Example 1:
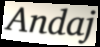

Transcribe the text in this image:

Andaj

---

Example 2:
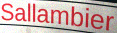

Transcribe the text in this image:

Sallambier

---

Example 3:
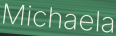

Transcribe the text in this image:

Michaela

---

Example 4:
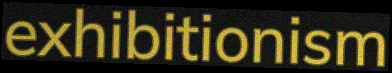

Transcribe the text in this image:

exhibitionism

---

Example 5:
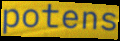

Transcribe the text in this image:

potens